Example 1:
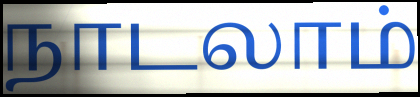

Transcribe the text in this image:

நாடலாம்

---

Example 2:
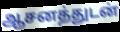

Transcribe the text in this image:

ஆசனத்துடன்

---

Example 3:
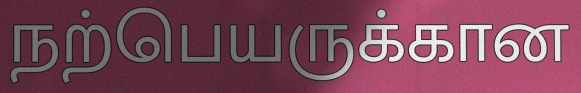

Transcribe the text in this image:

நற்பெயருக்கான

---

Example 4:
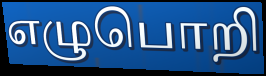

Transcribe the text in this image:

எழுபொறி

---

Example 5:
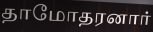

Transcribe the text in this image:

தாமோதரனார்